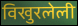
विखुरलेली